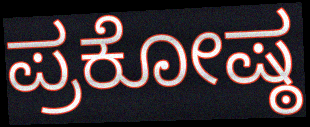
ಪ್ರಕೋಷ್ಠ